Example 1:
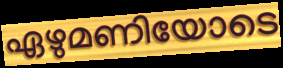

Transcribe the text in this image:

ഏഴുമണിയോടെ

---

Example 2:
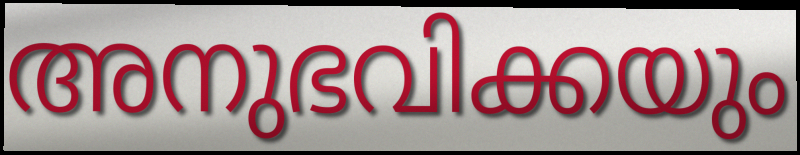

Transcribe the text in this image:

അനുഭവിക്കയും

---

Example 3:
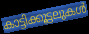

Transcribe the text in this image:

കാട്ടിക്കൂട്ടലുകൾ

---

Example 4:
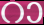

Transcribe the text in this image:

റാ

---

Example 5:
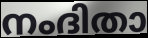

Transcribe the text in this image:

നംദിതാ